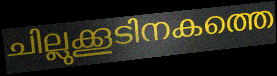
ചില്ലുക്കൂടിനകത്തെ